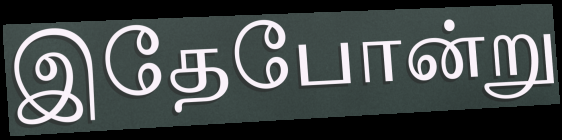
இதேபோன்று